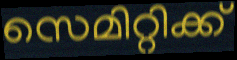
സെമിറ്റിക്ക്